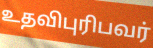
உதவிபுரிபவர்